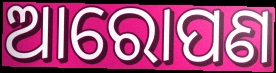
ଆରୋପଣ